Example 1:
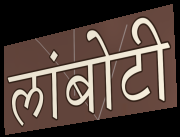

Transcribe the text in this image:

लांबोटी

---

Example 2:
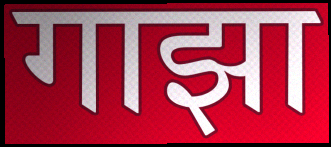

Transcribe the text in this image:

गाझा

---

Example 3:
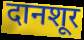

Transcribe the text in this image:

दानशूर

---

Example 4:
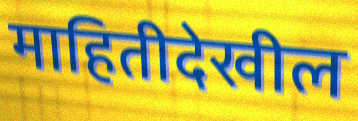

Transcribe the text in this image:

माहितीदेखील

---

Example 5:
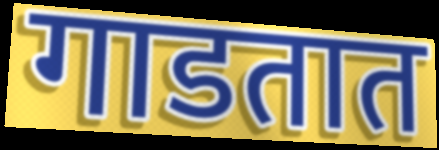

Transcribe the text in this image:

गाडतात